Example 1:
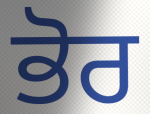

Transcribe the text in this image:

ਭੋਰ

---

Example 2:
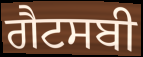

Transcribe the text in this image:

ਗੈਟਸਬੀ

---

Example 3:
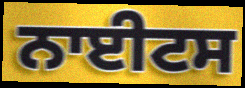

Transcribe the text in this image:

ਨਾਈਟਸ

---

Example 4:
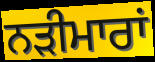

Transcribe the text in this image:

ਨੜੀਮਾਰਾਂ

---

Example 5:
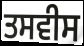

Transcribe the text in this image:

ਤਸਵੀਸ